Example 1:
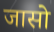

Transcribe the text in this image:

जासो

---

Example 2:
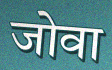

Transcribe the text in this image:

जोवा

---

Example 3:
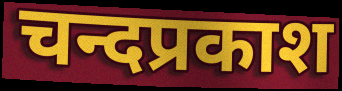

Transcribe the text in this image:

चन्दप्रकाश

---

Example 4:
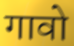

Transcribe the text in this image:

गावो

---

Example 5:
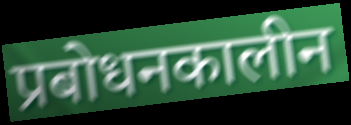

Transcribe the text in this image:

प्रबोधनकालीन